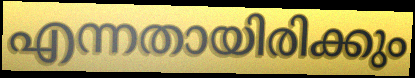
എന്നതായിരിക്കും